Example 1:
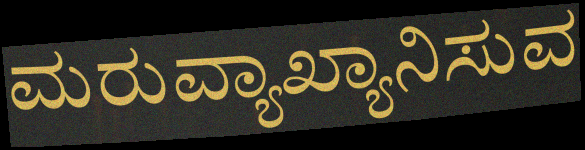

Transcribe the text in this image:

ಮರುವ್ಯಾಖ್ಯಾನಿಸುವ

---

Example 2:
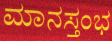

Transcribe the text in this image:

ಮಾನಸ್ತಂಭ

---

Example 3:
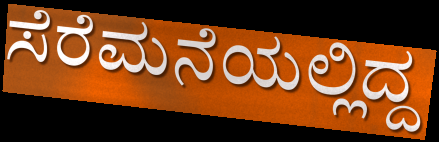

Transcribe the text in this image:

ಸೆರೆಮನೆಯಲ್ಲಿದ್ದ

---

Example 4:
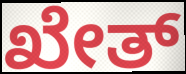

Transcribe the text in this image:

ಖೇತ್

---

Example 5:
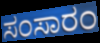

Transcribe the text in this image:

ಸಂಸಾರಂ